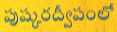
పుష్కరద్వీపంలో